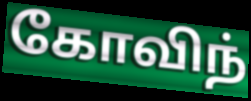
கோவிந்